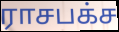
ராசபக்ச